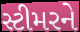
સ્ટીમરને